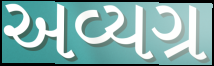
અવ્યગ્ર